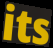
its